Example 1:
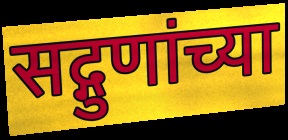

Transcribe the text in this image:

सद्गुणांच्या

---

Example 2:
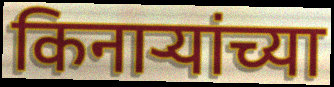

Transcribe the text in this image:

किनाऱ्यांच्या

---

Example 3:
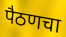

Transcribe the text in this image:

पैठणचा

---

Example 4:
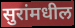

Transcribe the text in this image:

सुरांमधील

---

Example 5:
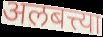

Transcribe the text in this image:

अलबत्त्या